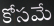
కోసమే